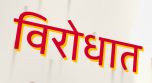
विरोधात